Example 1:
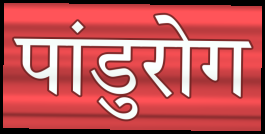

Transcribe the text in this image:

पांडुरोग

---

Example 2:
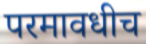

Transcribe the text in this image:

परमावधीच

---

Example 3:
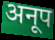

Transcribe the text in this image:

अनूप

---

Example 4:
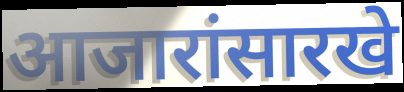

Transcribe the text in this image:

आजारांसारखे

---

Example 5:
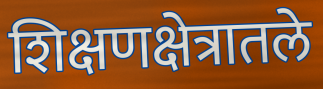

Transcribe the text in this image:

शिक्षणक्षेत्रातले